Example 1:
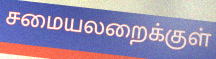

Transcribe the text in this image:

சமையலறைக்குள்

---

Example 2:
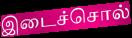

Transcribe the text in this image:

இடைச்சொல்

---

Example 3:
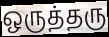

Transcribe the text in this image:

ஒருத்தரு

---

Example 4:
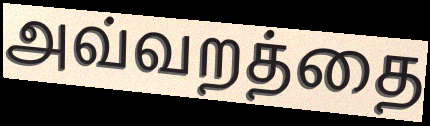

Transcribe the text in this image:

அவ்வறத்தை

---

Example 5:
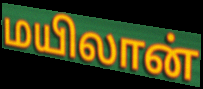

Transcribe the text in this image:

மயிலான்